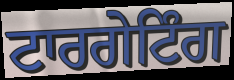
ਟਾਰਗੇਟਿੰਗ